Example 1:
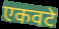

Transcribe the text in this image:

एकवटे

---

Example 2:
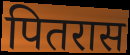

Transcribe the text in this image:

पितरास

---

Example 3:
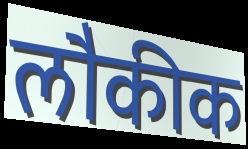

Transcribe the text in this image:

लौकीक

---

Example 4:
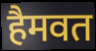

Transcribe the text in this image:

हैमवत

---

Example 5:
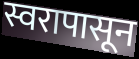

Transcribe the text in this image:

स्वरापासून